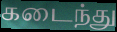
கடைந்து